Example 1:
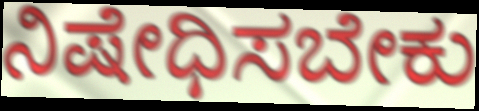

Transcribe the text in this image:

ನಿಷೇಧಿಸಬೇಕು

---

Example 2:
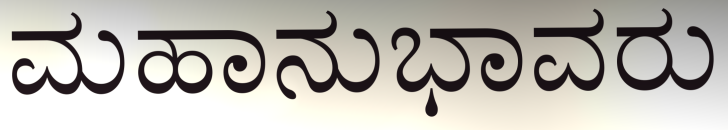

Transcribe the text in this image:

ಮಹಾನುಭಾವರು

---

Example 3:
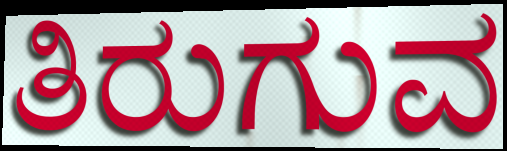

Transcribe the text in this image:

ತಿರುಗುವ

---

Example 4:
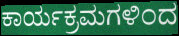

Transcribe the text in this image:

ಕಾರ್ಯಕ್ರಮಗಳಿಂದ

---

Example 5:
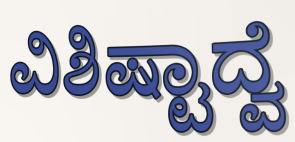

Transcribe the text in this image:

ವಿಶಿಷ್ಟಾದ್ವೆ